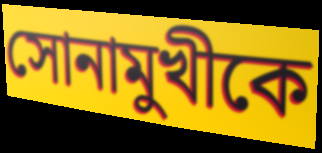
সোনামুখীকে